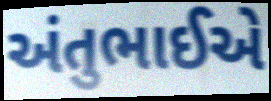
અંતુભાઈએ